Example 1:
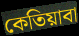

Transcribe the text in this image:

কেতিয়াবা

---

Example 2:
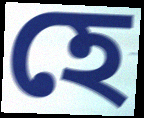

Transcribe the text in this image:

হে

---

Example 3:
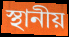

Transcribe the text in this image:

স্থানীয়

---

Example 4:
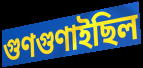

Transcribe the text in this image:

গুণগুণাইছিল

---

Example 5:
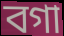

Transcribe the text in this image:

বগা